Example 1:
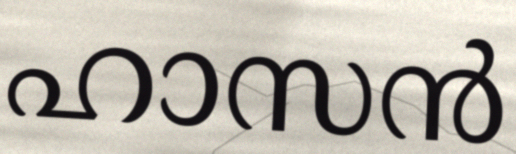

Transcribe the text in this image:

ഹാസൻ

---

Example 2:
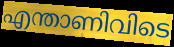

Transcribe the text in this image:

എന്താണിവിടെ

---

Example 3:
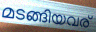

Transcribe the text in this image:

മടങ്ങിയവര്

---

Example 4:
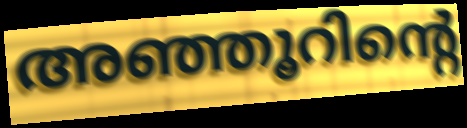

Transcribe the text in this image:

അഞ്ഞൂറിന്റെ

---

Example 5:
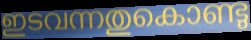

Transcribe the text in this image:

ഇടവന്നതുകൊണ്ടു